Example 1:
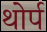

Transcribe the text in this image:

थोर्प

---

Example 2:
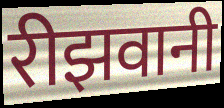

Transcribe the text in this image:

रीझवानी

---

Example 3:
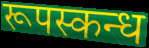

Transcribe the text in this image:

रूपस्कन्ध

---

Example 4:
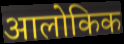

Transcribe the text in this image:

आलोकिक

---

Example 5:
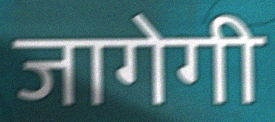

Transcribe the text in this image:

जागेगी